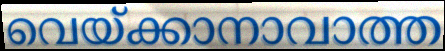
വെയ്ക്കാനാവാത്ത